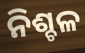
ନିଶ୍ଚଳ